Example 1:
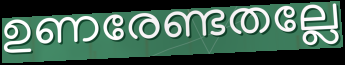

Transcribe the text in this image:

ഉണരേണ്ടതല്ലേ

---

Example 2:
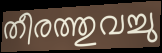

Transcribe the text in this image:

തീരത്തുവച്ചു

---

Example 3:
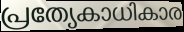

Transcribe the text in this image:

പ്രത്യേകാധികാര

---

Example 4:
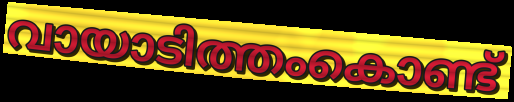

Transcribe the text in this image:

വായാടിത്തംകൊണ്ട്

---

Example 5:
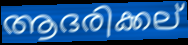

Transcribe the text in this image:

ആദരിക്കല്